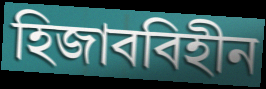
হিজাববিহীন